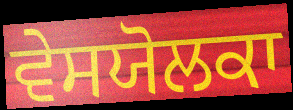
ਵੇਸਯੋਲਕਾ